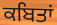
ਕਬਿਤਾਂ